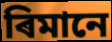
ৰিমানে